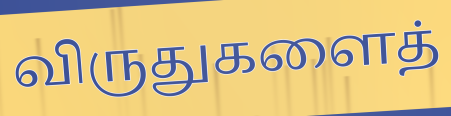
விருதுகளைத்